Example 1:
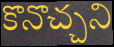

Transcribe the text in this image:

కొనొచ్చని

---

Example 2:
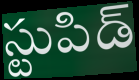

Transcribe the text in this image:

స్టుపిడ్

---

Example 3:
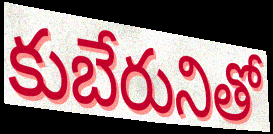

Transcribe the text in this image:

కుబేరునితో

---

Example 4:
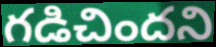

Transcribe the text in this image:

గడిచిందని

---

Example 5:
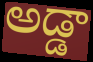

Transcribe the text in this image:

అడ్డా